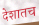
देशातच